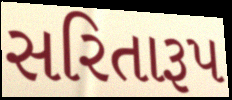
સરિતારૂપ